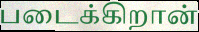
படைக்கிறான்